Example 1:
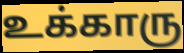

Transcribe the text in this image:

உக்காரு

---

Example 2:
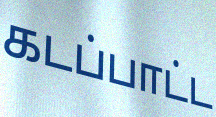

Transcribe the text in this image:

கடப்பாட்ட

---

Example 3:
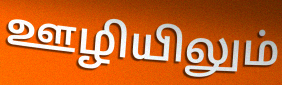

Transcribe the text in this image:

ஊழியிலும்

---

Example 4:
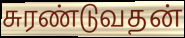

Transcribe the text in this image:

சுரண்டுவதன்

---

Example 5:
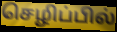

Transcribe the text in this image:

செழிப்பில்